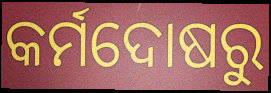
କର୍ମଦୋଷରୁ